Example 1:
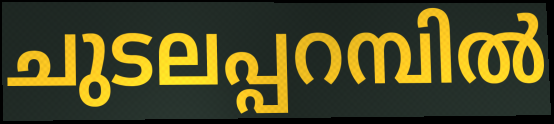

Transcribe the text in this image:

ചുടലപ്പറമ്പിൽ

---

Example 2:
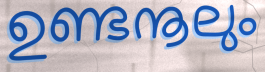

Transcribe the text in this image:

ഉണ്ടനൂലും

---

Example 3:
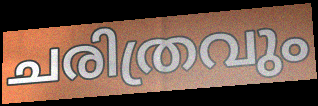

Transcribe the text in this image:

ചരിത്രവും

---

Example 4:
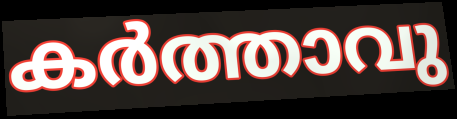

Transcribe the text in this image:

കർത്താവു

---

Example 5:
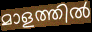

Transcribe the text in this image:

മാളത്തിൽ